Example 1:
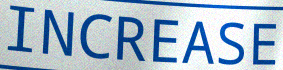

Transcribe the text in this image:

INCREASE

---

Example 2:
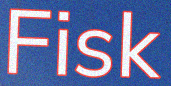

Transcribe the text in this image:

Fisk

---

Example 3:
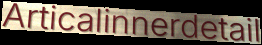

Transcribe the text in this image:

Articalinnerdetail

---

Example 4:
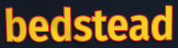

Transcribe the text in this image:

bedstead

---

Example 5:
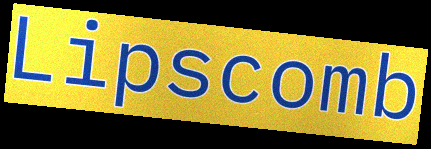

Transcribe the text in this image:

Lipscomb